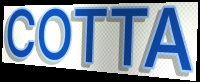
COTTA